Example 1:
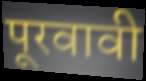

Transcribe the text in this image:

पूरवावी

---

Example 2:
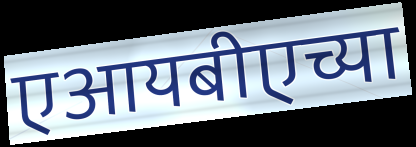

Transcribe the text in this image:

एआयबीएच्या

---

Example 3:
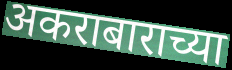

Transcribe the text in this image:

अकराबाराच्या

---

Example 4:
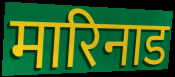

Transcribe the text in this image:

मारिनाड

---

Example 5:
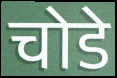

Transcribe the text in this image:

चोडे